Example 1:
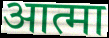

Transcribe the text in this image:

आत्‍मा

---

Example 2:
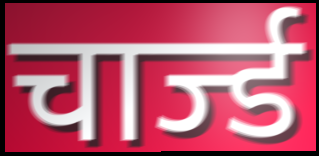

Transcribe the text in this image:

चार्ज्ड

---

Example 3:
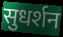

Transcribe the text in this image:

सुधर्शन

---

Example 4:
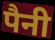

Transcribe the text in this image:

पैनी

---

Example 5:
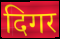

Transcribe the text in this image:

दिगर